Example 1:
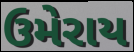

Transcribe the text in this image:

ઉમેરાય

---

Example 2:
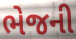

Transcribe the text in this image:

ભેજની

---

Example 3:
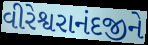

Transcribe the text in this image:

વીરેશ્વરાનંદજીને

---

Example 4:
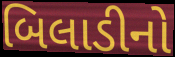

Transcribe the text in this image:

બિલાડીનો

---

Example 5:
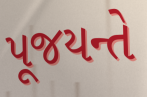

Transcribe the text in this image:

પૂજયન્તે